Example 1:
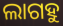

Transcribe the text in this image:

ଲାଗହୁ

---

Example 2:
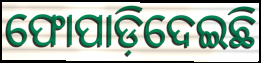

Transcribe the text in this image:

ଫୋପାଡ଼ିଦେଇଛି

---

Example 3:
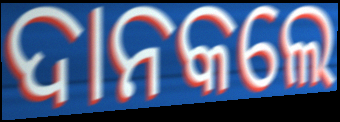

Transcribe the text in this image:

ଦାନକଲେ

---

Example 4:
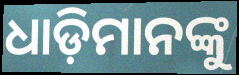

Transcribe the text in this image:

ଧାଡ଼ିମାନଙ୍କୁ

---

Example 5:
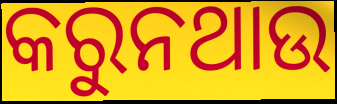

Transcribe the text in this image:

କରୁନଥାଉ